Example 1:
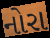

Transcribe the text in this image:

નોરા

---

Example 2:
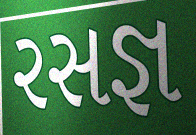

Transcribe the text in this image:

રસજ્ઞ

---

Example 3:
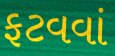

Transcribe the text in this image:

ફટવવાં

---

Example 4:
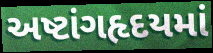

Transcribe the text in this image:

અષ્ટાંગહૃદયમાં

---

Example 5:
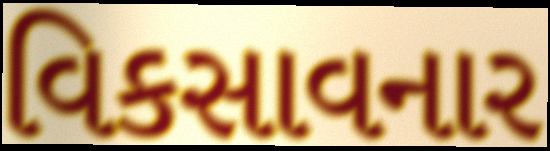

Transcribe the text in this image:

વિકસાવનાર